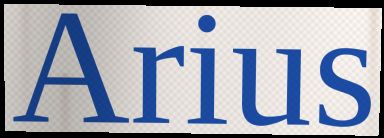
Arius